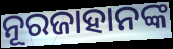
ନୂରଜାହାନଙ୍କ